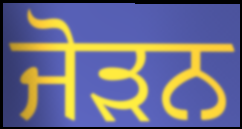
ਜੋੜਨ